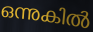
ഒന്നുകിൽ